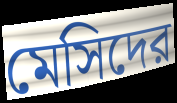
মেসিদের